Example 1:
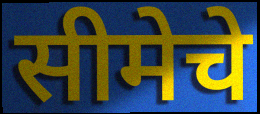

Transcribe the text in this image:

सीमेचे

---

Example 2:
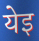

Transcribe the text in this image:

येइ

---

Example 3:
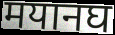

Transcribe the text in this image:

मयानघ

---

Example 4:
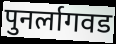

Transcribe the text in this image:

पुनर्लागवड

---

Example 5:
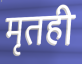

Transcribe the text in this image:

मृतही